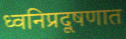
ध्वनिप्रदूषणात